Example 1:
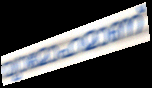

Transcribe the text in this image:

വ്യാമോഹമാണ്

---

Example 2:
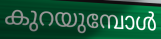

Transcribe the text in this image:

കുറയുമ്പോൾ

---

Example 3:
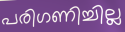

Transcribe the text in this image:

പരിഗണിച്ചില്ല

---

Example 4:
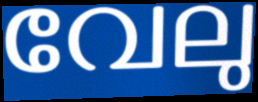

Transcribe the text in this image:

വേലു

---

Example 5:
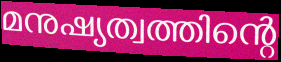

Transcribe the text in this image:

മനുഷ്യത്വത്തിന്റെ